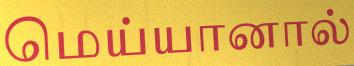
மெய்யானால்